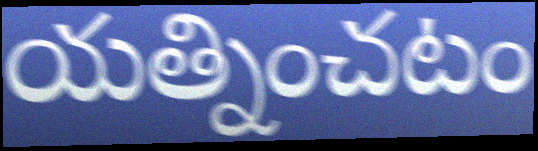
యత్నించటం